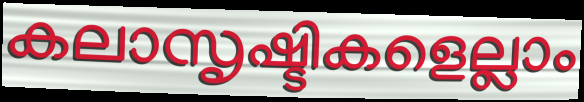
കലാസൃഷ്ടികളെല്ലാം